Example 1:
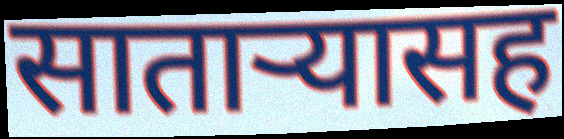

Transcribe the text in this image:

साताऱ्यासह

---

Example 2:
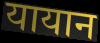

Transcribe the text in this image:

यायान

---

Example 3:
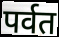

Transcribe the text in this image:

पर्वत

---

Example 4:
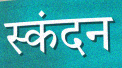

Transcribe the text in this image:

स्कंदन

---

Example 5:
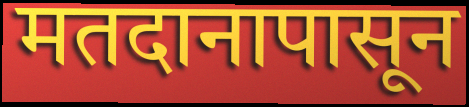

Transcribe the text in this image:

मतदानापासून